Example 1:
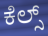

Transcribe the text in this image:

ಕೆಲ್ಸ್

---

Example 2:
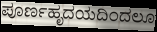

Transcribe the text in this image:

ಪೂರ್ಣಹೃದಯದಿಂದಲೂ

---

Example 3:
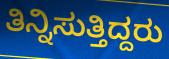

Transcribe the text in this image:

ತಿನ್ನಿಸುತ್ತಿದ್ದರು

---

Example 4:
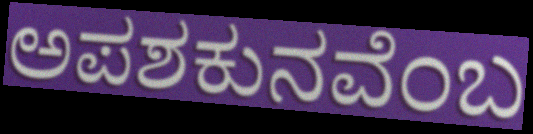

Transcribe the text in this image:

ಅಪಶಕುನವೆಂಬ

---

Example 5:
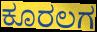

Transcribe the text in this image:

ಕೂರಲಗ